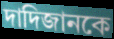
দাদিজানকে